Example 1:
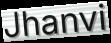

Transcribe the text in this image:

Jhanvi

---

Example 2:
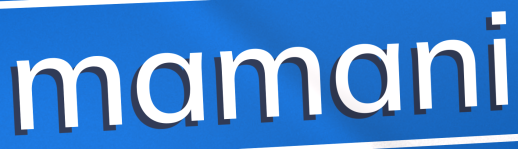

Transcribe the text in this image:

mamani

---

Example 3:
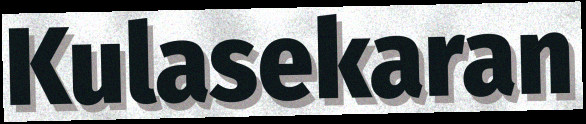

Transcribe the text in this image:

Kulasekaran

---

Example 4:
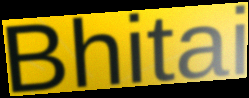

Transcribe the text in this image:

Bhitai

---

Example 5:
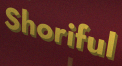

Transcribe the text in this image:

Shoriful